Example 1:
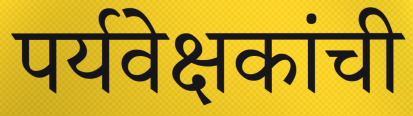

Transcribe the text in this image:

पर्यवेक्षकांची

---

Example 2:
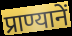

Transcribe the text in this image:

प्राण्यानें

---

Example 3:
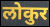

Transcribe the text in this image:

लोकुर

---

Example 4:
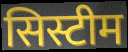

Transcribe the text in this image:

सिस्टीम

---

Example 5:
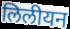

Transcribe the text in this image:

लिलीयन